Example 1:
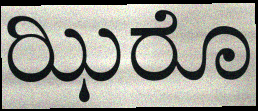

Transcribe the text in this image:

ಝಿರೊ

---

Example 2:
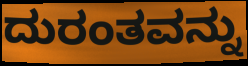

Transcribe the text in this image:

ದುರಂತವನ್ನು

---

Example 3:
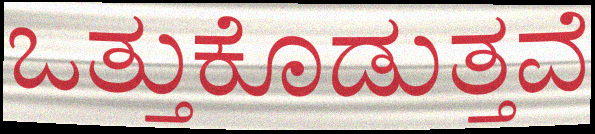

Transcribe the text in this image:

ಒತ್ತುಕೊಡುತ್ತವೆ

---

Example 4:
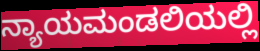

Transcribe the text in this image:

ನ್ಯಾಯಮಂಡಲಿಯಲ್ಲಿ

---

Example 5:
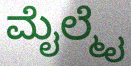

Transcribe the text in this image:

ಮೈಲ್ಮೈ